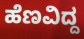
ಹೆಣವಿದ್ದ